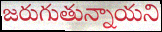
జరుగుతున్నాయని